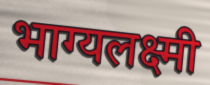
भाग्यलक्ष्मी